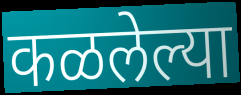
कळलेल्या